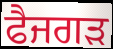
ਫੈਜਗੜ